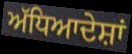
ਅੱਧਿਆਦੇਸ਼ਾਂ